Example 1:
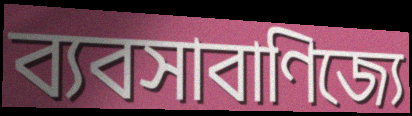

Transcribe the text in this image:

ব্যবসাবাণিজ্যে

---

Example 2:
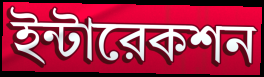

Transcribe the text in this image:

ইন্টারেকশন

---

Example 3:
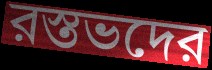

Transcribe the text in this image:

রস্তভদের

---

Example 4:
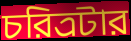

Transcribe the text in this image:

চরিত্রটার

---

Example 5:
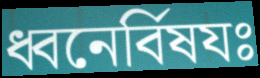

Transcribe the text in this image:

ধ্বনের্বিষযঃ